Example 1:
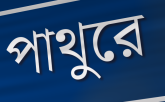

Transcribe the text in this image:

পাথুরে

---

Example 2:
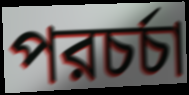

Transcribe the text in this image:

পরচর্চা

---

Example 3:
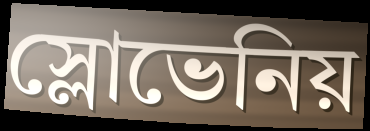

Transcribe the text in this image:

স্লোভেনিয়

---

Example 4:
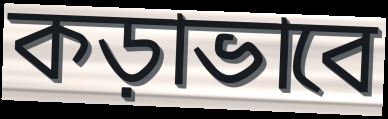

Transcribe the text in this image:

কড়াভাবে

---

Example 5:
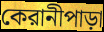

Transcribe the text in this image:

কেরানীপাড়া